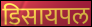
डिसायपल